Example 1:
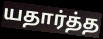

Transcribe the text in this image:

யதார்த்த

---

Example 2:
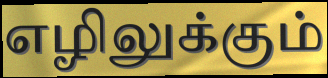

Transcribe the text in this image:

எழிலுக்கும்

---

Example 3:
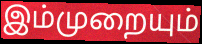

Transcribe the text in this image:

இம்முறையும்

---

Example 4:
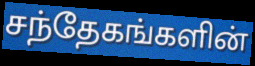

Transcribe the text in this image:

சந்தேகங்களின்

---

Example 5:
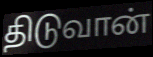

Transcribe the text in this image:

திடுவான்